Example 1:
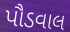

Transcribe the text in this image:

પૌડવાલ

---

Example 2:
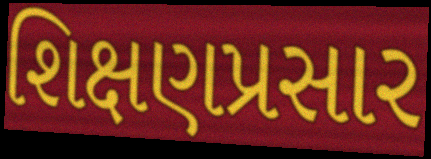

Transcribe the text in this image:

શિક્ષણપ્રસાર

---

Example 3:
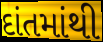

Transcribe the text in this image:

દાંતમાંથી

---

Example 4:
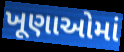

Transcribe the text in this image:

ખૂણાઓમાં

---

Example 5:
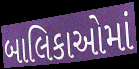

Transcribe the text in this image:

બાલિકાઓમાં